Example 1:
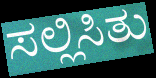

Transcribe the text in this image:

ಸಲ್ಲಿಸಿತು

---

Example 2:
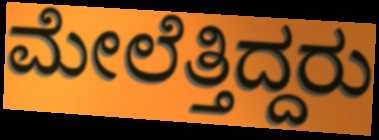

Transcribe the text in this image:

ಮೇಲೆತ್ತಿದ್ದರು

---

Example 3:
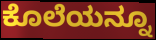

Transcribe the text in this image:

ಕೊಲೆಯನ್ನೂ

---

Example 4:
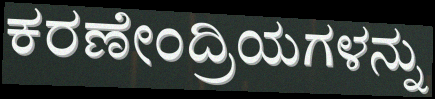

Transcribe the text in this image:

ಕರಣೇಂದ್ರಿಯಗಳನ್ನು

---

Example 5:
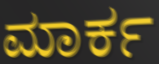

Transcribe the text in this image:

ಮಾರ್ಕ